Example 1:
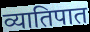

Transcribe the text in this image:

व्यातिपात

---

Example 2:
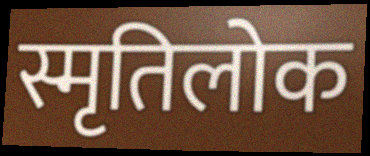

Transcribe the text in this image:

स्मृतिलोक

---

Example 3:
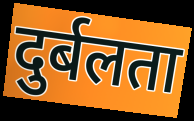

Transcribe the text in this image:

दुर्बलता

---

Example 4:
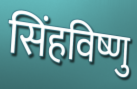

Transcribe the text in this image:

सिंहविष्णु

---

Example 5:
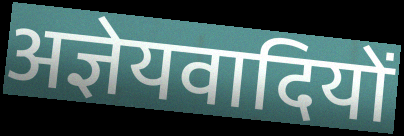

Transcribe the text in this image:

अज्ञेयवादियों